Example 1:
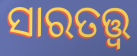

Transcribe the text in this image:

ସାରତତ୍ତ୍ୱ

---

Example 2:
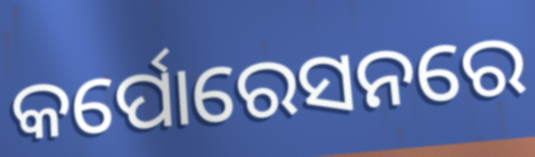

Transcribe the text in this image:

କର୍ପୋରେସନରେ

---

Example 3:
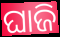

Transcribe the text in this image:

ଘାଜି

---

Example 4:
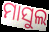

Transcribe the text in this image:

ମାସୁଲ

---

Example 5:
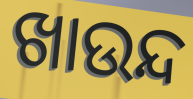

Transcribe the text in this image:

ଖାଉନ୍ଦ